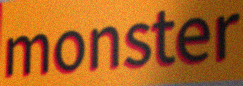
monster